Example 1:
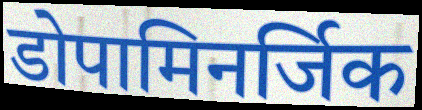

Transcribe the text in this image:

डोपामिनर्जिक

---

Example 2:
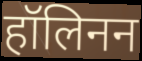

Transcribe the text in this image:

हॉलिनन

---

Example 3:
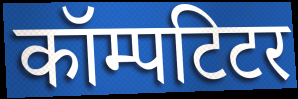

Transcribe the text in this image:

कॉम्पटिटर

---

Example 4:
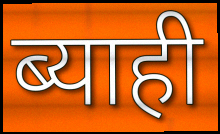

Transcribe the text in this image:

ब्याही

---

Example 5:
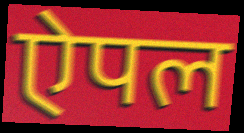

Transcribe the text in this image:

ऐपल